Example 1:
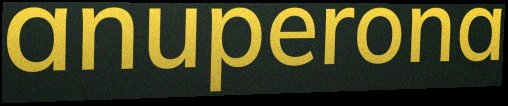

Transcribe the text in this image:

anuperona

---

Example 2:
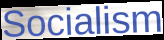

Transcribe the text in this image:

Socialism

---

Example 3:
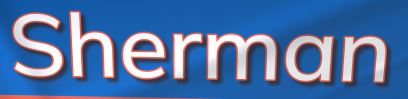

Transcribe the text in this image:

Sherman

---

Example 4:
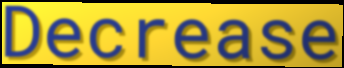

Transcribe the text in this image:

Decrease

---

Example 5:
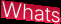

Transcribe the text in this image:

Whats